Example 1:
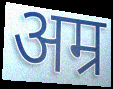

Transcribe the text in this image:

अम्र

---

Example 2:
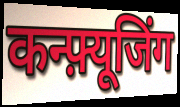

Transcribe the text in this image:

कन्फ़्यूजिंग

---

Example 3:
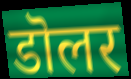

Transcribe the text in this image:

डॊलर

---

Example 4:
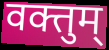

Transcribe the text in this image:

वक्तुम्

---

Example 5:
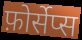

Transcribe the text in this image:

फ़ोर्सेप्स